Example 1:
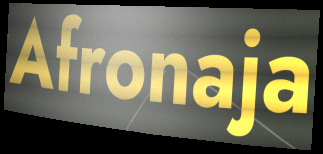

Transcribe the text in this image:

Afronaja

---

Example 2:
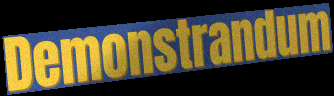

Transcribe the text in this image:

Demonstrandum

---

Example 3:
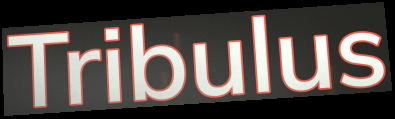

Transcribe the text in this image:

Tribulus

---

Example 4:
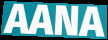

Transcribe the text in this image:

AANA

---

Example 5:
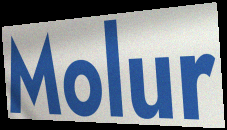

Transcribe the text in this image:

Molur